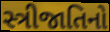
સ્ત્રીજાતિનો